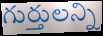
గుర్తులన్ని